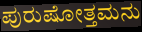
ಪುರುಷೋತ್ತಮನು